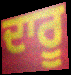
ਦਾਰੂ